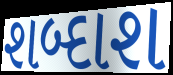
શબ્દાશ